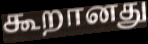
கூறானது